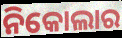
ନିକୋଲାର